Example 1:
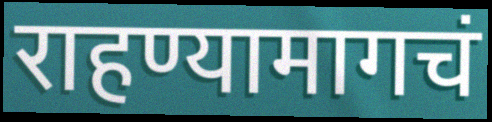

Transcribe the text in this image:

राहण्यामागचं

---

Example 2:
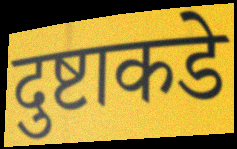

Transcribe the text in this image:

दुष्टाकडे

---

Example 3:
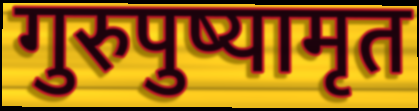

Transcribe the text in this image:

गुरुपुष्यामृत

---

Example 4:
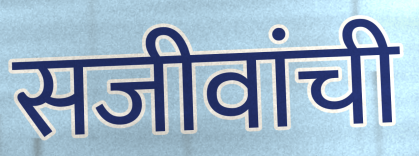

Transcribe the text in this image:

सजीवांची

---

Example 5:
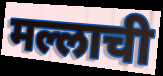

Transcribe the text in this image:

मल्लाची